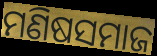
ମଣିଷସମାଜ